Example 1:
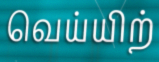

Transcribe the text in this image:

வெய்யிற்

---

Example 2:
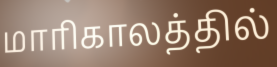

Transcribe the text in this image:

மாரிகாலத்தில்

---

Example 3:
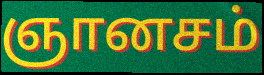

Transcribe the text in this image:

ஞானசம்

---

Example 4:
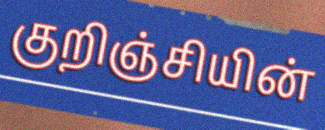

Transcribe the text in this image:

குறிஞ்சியின்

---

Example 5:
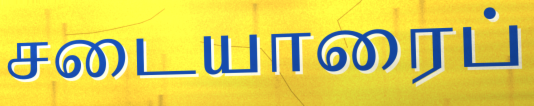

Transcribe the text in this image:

சடையாரைப்